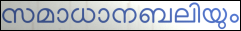
സമാധാനബലിയും